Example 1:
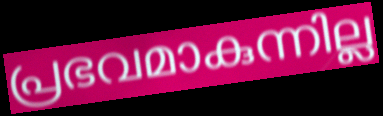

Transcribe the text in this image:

പ്രഭവമാകുന്നില്ല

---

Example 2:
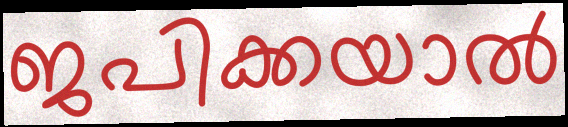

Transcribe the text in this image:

ജപിക്കയാൽ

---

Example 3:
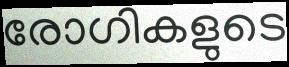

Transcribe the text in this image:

രോഗികളുടെ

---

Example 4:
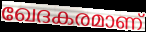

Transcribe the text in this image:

ഖേദകരമാണ്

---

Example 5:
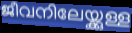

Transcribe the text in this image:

ജീവനിലേയ്ക്കുള്ള